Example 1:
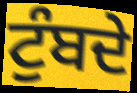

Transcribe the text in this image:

ਟੁੰਬਦੇ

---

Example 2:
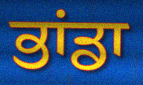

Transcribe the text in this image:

ਭਾਂਡਾ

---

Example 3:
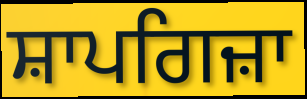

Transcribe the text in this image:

ਸ਼ਾਪਗਿਜ਼ਾ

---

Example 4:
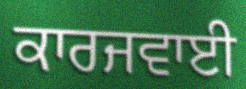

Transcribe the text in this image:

ਕਾਰਜਵਾਈ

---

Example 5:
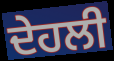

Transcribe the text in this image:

ਦੇਹਲੀ